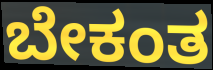
ಬೇಕಂತ